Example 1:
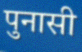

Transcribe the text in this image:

पुनासी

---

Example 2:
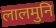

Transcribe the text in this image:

लालमुनि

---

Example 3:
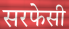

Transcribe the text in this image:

सरफेसी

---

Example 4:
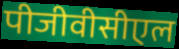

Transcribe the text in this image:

पीजीवीसीएल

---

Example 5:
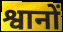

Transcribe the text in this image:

श्वानों